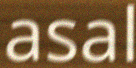
asal